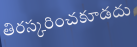
తిరస్కరించకూడదు